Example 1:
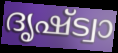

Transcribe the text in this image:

ദൃഷ്ട്വാ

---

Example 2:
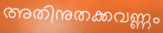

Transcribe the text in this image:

അതിനുതക്കവണ്ണം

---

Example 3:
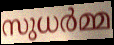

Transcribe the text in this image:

സുധർമ്മ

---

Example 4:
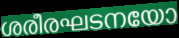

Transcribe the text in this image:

ശരീരഘടനയോ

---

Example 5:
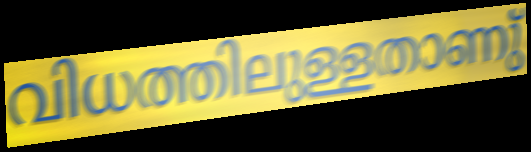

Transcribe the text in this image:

വിധത്തിലുള്ളതാണു്